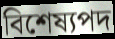
বিশেষ্যপদ